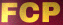
FCP